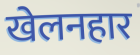
खेलनहार